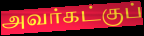
அவர்கட்குப்